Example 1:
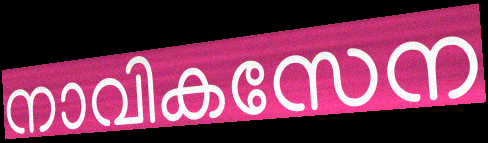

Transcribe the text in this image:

നാവികസേന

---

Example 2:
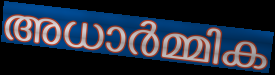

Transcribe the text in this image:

അധാർമ്മിക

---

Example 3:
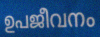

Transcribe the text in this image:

ഉപജീവനം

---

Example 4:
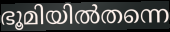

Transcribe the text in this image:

ഭൂമിയിൽതന്നെ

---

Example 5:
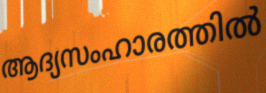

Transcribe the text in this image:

ആദ്യസംഹാരത്തിൽ